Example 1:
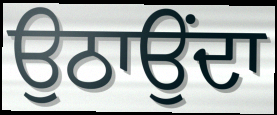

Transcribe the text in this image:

ਉਠਾਉਂਦਾ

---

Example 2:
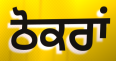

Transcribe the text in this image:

ਠੋਕਰਾਂ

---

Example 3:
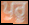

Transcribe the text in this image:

ਪੁਰੂ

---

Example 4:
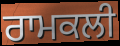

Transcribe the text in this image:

ਰਾਮਕਲੀ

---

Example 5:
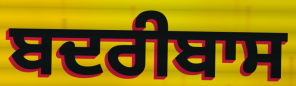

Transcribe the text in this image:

ਬਦਰੀਬਾਸ